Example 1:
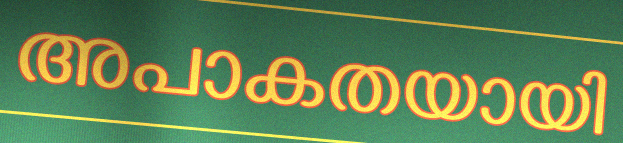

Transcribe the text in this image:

അപാകതയായി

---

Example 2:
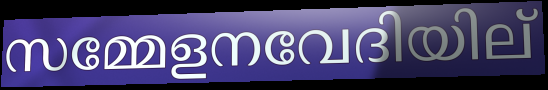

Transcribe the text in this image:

സമ്മേളനവേദിയില്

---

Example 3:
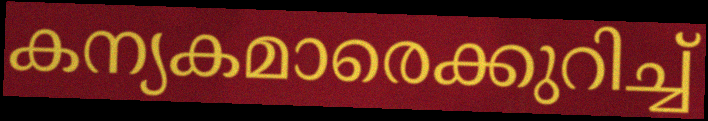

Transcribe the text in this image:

കന്യകമാരെക്കുറിച്ച്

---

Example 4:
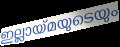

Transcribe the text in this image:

ഇല്ലായ്മയുടെയും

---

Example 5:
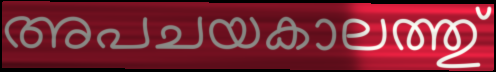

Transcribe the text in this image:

അപചയകാലത്തു്